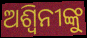
ଅଶ୍ୱିନୀଙ୍କୁ